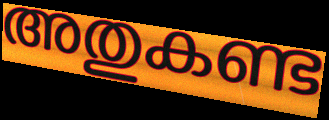
അതുകണ്ട